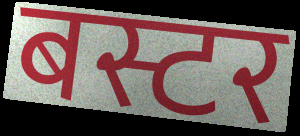
बस्टर